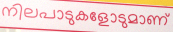
നിലപാടുകളോടുമാണ്